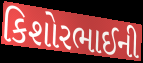
કિશોરભાઈની